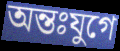
অন্তঃযুগে